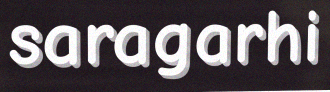
saragarhi